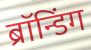
ब्रॉन्डिंग